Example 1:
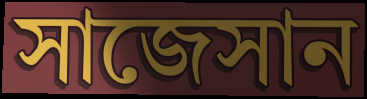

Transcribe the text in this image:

সাজেসান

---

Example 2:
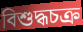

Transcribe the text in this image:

বিশুদ্ধচক্র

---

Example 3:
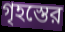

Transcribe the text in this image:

গৃহস্তের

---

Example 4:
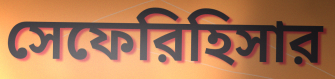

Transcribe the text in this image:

সেফেরিহিসার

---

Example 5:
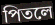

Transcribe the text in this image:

পিতলে